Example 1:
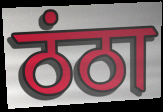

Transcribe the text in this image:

ठंठा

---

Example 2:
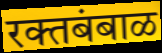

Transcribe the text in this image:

रक्तबंबाळ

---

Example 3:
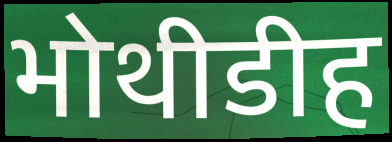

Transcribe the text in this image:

भोथीडीह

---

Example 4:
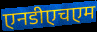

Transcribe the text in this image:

एनडीएचएम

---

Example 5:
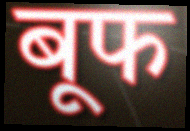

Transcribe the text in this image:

बूफ